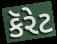
કૅરેટ